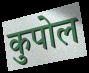
कुपोल